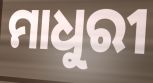
ମାଧୁରୀ